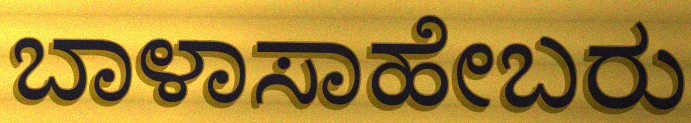
ಬಾಳಾಸಾಹೇಬರು